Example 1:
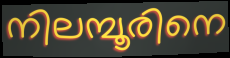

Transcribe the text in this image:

നിലമ്പൂരിനെ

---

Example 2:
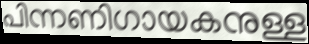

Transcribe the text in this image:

പിന്നണിഗായകനുള്ള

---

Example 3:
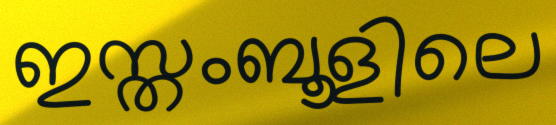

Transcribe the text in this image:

ഇസ്തംബൂളിലെ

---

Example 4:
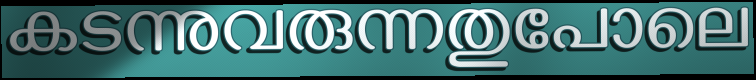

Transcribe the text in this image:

കടന്നുവരുന്നതുപോലെ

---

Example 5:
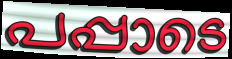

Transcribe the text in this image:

പപ്പാടെ